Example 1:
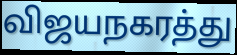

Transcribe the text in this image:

விஜயநகரத்து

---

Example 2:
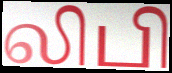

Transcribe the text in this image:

லிபி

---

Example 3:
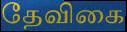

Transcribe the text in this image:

தேவிகை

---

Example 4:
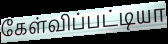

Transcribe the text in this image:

கேள்விப்பட்டியா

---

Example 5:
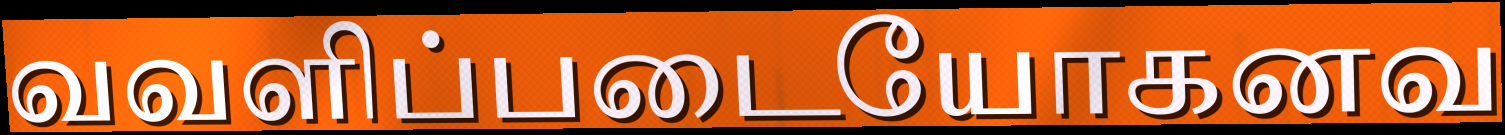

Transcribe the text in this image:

வவளிப்படையோகனவ